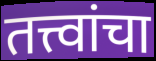
तत्त्वांचा